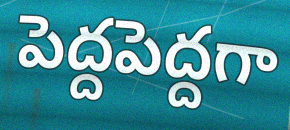
పెద్దపెద్దగా